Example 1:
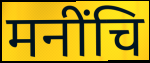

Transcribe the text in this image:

मनींचि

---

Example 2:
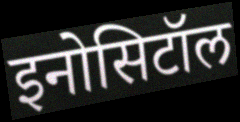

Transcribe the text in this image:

इनोसिटॉल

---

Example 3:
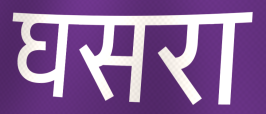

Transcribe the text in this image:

घसरा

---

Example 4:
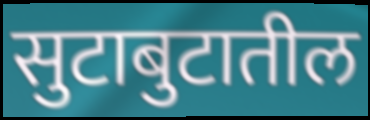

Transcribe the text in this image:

सुटाबुटातील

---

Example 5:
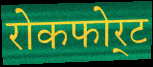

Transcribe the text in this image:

रोकफोर्ट